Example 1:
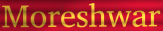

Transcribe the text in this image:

Moreshwar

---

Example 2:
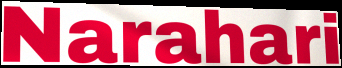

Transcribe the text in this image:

Narahari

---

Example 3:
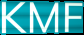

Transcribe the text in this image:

KMF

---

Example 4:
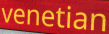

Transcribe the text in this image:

venetian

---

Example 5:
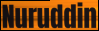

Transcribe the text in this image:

Nuruddin